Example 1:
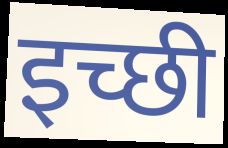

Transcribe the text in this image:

इच्छी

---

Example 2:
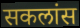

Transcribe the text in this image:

सकलांस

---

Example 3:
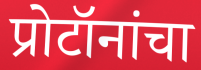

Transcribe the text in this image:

प्रोटॉनांचा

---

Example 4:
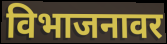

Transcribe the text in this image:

विभाजनावर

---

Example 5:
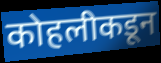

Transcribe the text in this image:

कोहलीकडून